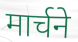
मार्चने